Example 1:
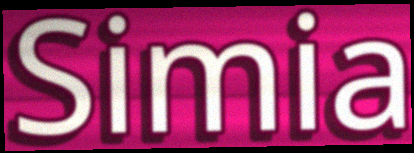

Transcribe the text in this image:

Simia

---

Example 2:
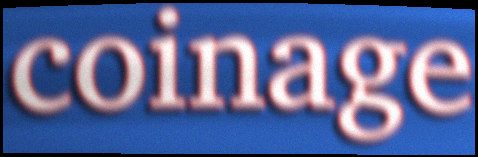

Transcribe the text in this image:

coinage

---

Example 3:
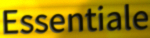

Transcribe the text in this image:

Essentiale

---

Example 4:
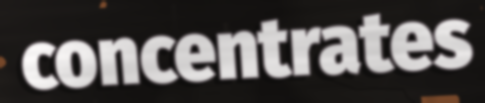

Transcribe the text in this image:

concentrates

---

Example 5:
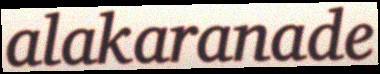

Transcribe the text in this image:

alakaranade